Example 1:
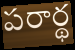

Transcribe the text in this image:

పరార్థ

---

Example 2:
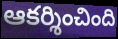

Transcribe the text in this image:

ఆకర్శించింది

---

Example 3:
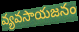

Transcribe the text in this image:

వ్యవసాయజనం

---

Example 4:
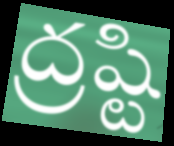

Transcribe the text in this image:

ద్రష్టి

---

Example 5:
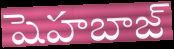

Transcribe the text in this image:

షెహబాజ్